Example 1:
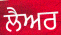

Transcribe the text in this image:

ਲੈਅਰ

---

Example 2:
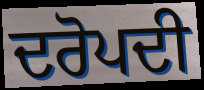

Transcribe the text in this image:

ਦਰੋਪਦੀ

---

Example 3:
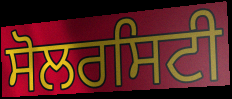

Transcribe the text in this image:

ਸੋਲਰਸਿਟੀ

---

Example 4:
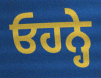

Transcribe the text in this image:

ਓਹਨ੍ਹੇ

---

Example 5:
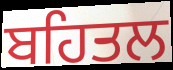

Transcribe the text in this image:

ਬਹਿਤਲ